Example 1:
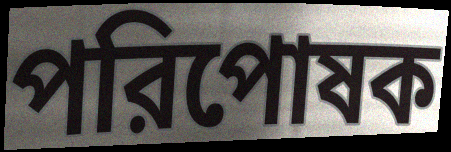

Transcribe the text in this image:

পরিপোষক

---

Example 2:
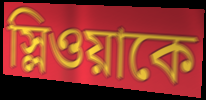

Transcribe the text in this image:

স্লিওয়াকে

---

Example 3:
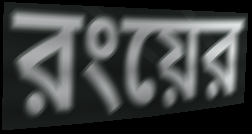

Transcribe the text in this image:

রংয়ের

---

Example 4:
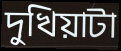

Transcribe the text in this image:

দুখিয়াটা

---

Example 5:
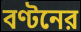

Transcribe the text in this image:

বণ্টনের